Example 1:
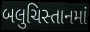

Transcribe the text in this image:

બલુચિસ્તાનમાં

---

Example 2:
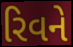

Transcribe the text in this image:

રિવને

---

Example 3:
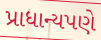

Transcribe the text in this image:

પ્રાધાન્યપણે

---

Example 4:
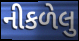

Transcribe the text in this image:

નીકળેલુ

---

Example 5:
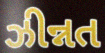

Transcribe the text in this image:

ઝીન્નત